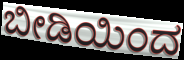
ಬೀಡಿಯಿಂದ